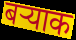
बऱ्याक